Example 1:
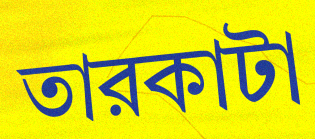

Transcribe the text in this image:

তারকাটা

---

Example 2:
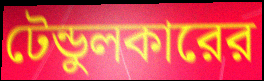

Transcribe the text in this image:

টেন্ডুলকারের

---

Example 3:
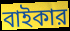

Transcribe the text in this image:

বাইকার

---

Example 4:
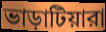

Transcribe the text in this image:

ভাড়াটিয়ারা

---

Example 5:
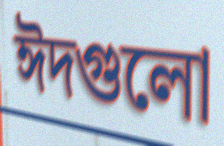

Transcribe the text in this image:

ঈদগুলো